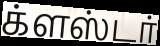
க்ளஸ்டர்